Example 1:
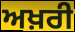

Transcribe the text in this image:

ਅਖ਼ਰੀ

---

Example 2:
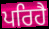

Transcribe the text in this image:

ਪਰਿਹੈ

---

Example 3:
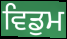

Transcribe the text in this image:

ਵਿਡੁਮ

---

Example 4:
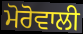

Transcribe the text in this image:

ਮੋਰੋਵਾਲੀ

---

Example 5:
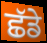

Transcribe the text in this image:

ਛੱਡੇ